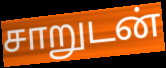
சாறுடன்